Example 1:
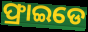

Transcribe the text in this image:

ଫ୍ରାଇଡେ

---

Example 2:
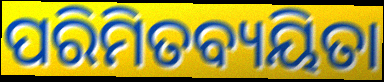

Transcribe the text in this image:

ପରିମିତବ୍ୟୟିତା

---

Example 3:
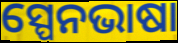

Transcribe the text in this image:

ସ୍ପେନଭାଷା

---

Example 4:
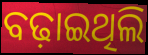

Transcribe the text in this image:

ବଢ଼ାଇଥିଲି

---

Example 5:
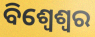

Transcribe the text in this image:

ବିଶ୍ୱେଶ୍ୱର